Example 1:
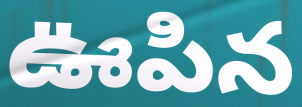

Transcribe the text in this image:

ఊపిన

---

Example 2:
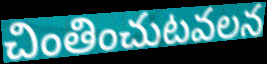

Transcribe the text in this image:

చింతించుటవలన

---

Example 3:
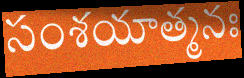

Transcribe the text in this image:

సంశయాత్మనః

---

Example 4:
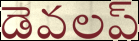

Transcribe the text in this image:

డెవలప్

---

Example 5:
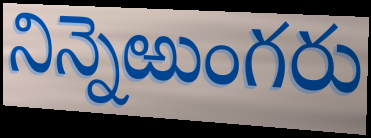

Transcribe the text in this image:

నిన్నెఱుంగరు